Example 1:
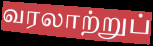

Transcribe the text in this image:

வரலாற்றுப்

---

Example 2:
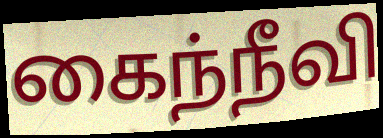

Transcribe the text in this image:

கைந்நீவி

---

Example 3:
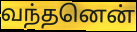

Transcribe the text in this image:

வந்தனென்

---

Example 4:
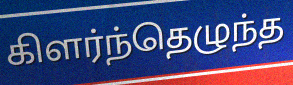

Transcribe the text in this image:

கிளர்ந்தெழுந்த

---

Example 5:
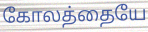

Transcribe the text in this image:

கோலத்தையே